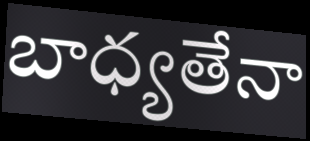
బాధ్యతేనా